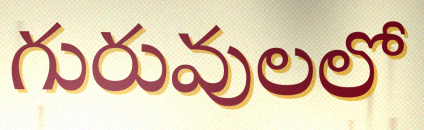
గురువులలో